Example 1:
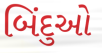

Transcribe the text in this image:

બિંદુઓ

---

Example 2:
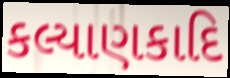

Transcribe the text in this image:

કલ્યાણકાદિ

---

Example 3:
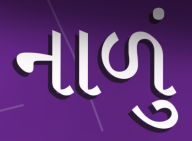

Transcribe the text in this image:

નાળું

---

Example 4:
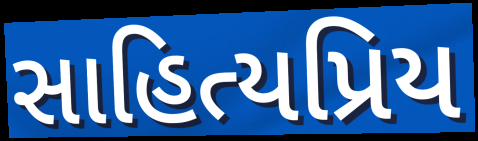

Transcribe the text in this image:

સાહિત્યપ્રિય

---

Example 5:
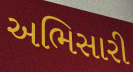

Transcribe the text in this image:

અભિસારી